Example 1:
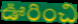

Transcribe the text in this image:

ఊరించి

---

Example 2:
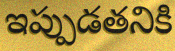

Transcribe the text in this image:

ఇప్పుడతనికి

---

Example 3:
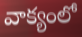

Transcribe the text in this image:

వాక్యంలో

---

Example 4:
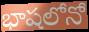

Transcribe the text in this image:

భాషలోనో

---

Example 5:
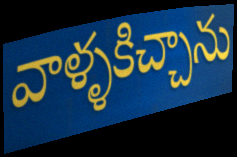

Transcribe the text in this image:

వాళ్ళకిచ్చాను